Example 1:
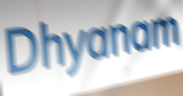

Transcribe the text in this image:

Dhyanam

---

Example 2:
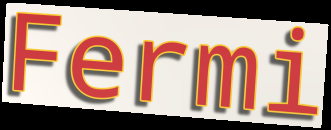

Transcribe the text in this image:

Fermi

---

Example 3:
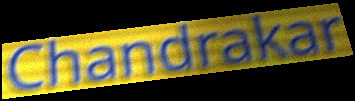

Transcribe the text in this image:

Chandrakar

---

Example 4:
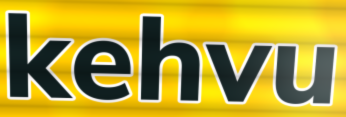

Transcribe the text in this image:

kehvu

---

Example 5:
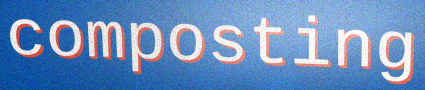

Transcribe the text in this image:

composting